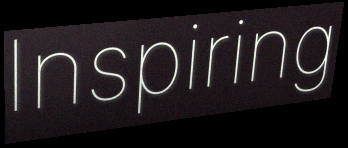
Inspiring